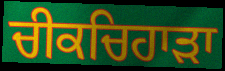
ਚੀਕਚਿਹਾੜਾ